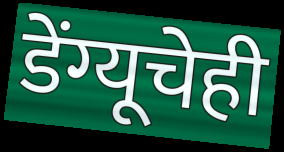
डेंग्यूचेही